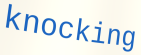
knocking